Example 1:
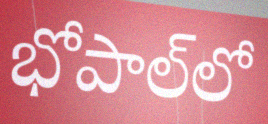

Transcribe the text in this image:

భోపాల్‌లో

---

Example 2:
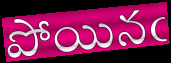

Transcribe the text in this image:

పోయినఁ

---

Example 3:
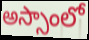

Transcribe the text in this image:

అస్సాంలో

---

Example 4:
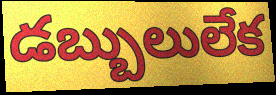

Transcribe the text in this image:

డబ్బులులేక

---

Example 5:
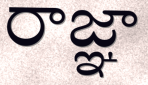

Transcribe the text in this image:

రాజ్ఞా